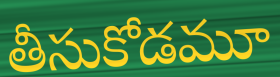
తీసుకోడమూ